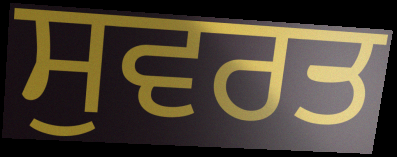
ਸੁਵਰਤ